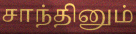
சாந்தினும்